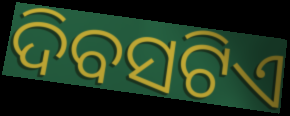
ଦିବସଟିଏ